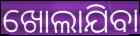
ଖୋଲାଯିବା